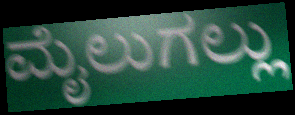
ಮೈಲುಗಲ್ಲು